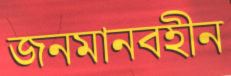
জনমানবহীন